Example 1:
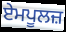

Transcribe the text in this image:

ਏਮਪੂਲਜ਼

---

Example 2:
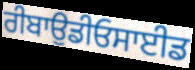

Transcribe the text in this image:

ਰੀਬਾਉਡੀਓਸਾਈਡ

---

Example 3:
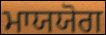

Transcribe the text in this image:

ਮਾਯਯੋਗ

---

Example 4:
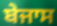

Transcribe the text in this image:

ਬੇਜਾਸ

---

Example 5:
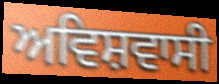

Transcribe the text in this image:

ਅਵਿਸ਼ਵਾਸੀ